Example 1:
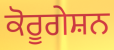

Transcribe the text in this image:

ਕੋਰੂਗੇਸ਼ਨ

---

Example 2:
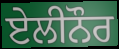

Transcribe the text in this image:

ਏਲੀਨੌਰ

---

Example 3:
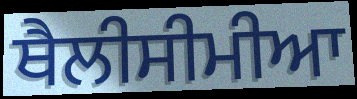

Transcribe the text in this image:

ਥੈਲੀਸੀਮੀਆ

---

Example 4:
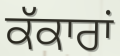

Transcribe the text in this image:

ਕੱਕਾਰਾਂ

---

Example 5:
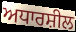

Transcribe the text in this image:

ਅਧਾਰਸ਼ੀਲ